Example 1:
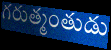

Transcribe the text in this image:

గరుత్మంతుడు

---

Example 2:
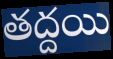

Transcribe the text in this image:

తద్దయి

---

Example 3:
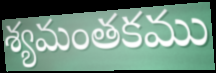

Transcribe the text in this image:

శ్యమంతకము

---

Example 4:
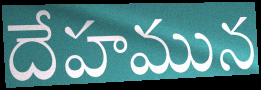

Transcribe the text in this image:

దేహమున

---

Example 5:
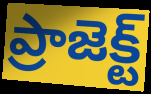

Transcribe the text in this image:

ప్రాజెక్ట్